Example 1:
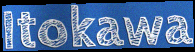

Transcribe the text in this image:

Itokawa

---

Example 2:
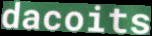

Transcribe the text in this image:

dacoits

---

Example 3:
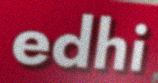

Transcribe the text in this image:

edhi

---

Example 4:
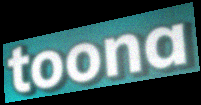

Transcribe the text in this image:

toona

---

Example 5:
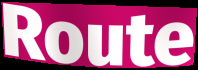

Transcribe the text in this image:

Route